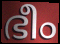
ഭീം